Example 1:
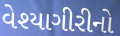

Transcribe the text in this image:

વેશ્યાગીરીનો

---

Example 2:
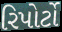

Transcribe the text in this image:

રિપોર્ટો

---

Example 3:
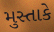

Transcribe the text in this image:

મુસ્તાકે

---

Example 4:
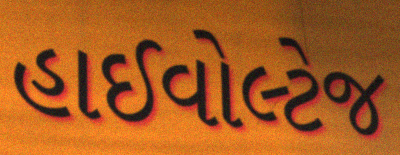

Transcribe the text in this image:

હાઈવોલ્ટેજ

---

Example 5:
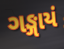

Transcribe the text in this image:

ગઙ્ગાયં